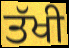
ਤੱਖੀ